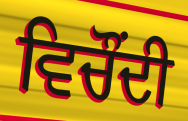
ਵਿਚੌਂਦੀ